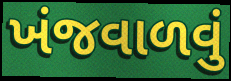
ખંજવાળવું